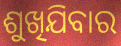
ଶୁଖିଯିବାର